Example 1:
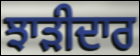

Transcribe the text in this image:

ਝਾੜੀਦਾਰ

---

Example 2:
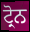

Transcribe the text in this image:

ਟ੍ਰੋਨ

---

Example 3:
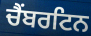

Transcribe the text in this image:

ਚੈਂਬਰਟਿਨ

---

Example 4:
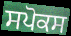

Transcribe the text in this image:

ਸਪੋਕਸ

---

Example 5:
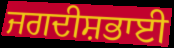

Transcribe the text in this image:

ਜਗਦੀਸ਼ਭਾਈ